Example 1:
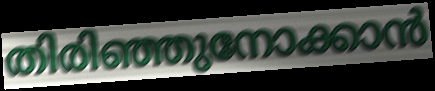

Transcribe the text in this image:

തിരിഞ്ഞുനോക്കാൻ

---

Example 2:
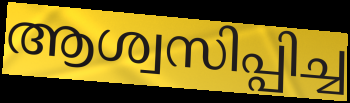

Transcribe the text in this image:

ആശ്വസിപ്പിച്ച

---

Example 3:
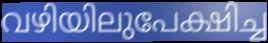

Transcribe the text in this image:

വഴിയിലുപേക്ഷിച്ച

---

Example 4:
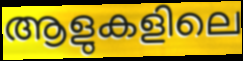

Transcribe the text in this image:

ആളുകളിലെ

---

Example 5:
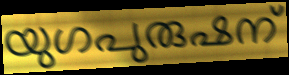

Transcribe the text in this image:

യുഗപുരുഷന്